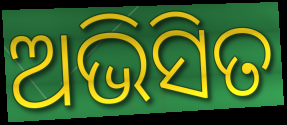
ଅଭିସିତ